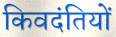
किवदंतियों